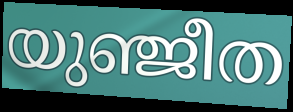
യുഞ്ജീത